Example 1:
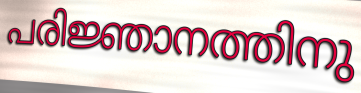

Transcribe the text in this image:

പരിജ്ഞാനത്തിനു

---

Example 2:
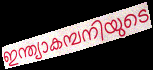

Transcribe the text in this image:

ഇന്ത്യാകമ്പനിയുടെ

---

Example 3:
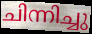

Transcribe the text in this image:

ചിന്നിച്ചു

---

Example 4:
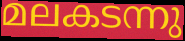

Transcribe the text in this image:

മലകടന്നു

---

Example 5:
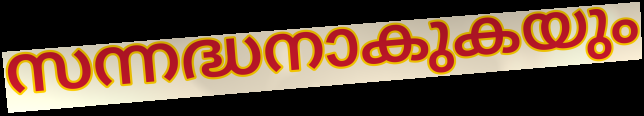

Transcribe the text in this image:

സന്നദ്ധനാകുകയും